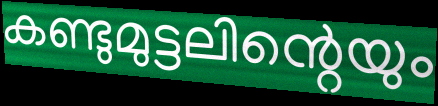
കണ്ടുമുട്ടലിന്റെയും